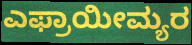
ಎಫ್ರಾಯೀಮ್ಯರ